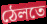
ঠেলতে